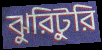
ঝুরিটুরি